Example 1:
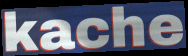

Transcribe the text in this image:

kache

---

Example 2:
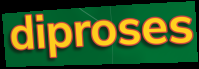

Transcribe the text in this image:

diproses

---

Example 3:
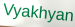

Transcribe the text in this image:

Vyakhyan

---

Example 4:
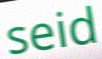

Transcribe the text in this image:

seid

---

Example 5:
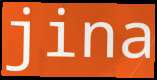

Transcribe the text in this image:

jina